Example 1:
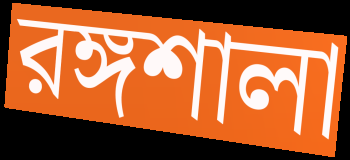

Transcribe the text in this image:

রঙ্গশালা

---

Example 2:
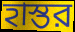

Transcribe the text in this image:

হাস্তর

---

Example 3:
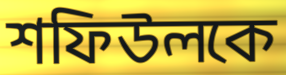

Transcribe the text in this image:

শফিউলকে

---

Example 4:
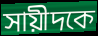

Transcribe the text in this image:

সায়ীদকে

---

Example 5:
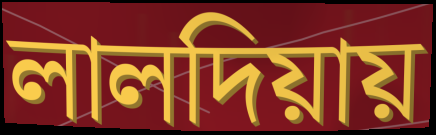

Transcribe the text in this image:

লালদিয়ায়